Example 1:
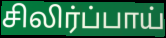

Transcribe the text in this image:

சிலிர்ப்பாய்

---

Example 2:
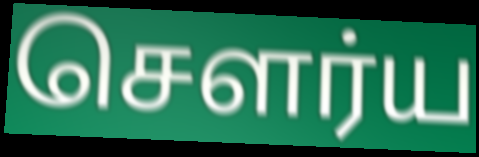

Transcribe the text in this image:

சௌர்ய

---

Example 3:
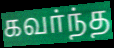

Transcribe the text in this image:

கவர்ந்த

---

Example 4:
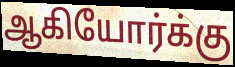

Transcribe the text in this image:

ஆகியோர்க்கு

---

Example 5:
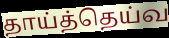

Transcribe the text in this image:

தாய்த்தெய்வ